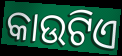
କାଉଟିଏ